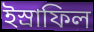
ইস্রাফিল